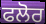
ਫਲੋਰ